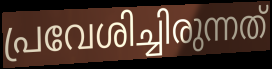
പ്രവേശിച്ചിരുന്നത്